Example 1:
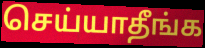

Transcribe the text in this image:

செய்யாதீங்க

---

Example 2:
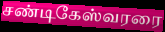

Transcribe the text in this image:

சண்டிகேஸ்வரரை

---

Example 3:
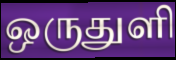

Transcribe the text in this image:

ஒருதுளி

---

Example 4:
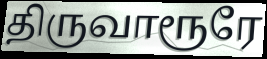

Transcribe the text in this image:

திருவாரூரே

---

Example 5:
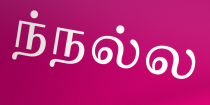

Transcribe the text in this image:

ந்நல்ல